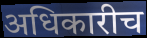
अधिकारीच